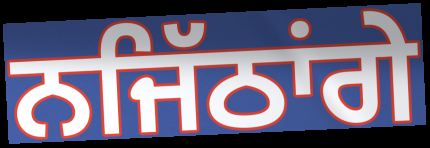
ਨਜਿੱਠਾਂਗੇ